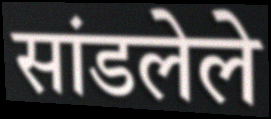
सांडलेले